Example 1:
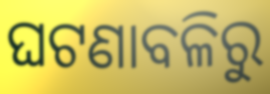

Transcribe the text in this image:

ଘଟଣାବଳିରୁ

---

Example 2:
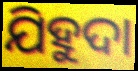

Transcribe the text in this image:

ଯିହୁଦା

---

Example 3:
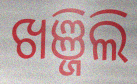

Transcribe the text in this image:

ଖଞ୍ଜିଲି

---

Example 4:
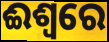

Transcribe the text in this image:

ଈଶ୍ଵରେ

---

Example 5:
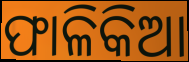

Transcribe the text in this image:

ଫାଳିକିଆ